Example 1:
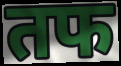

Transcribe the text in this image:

तफ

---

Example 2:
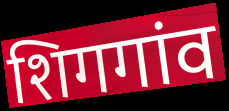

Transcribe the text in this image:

शिगगांव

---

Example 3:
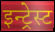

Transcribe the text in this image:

इन्ट्रेस्ट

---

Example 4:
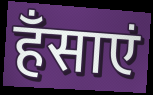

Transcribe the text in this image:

हँसाएं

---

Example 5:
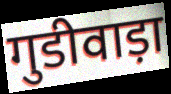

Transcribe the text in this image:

गुडीवाड़ा